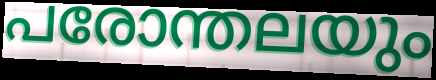
പരോന്തലയും